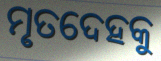
ମୃତଦେହକୁ